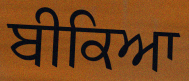
ਬੀਕਿਆ